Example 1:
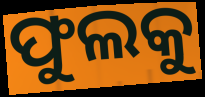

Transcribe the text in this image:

ଫୁଲକୁ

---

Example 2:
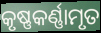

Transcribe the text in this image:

କୃଷ୍ଣକର୍ଣ୍ଣାମୃତ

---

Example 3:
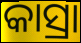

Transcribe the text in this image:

କାସ୍ରା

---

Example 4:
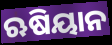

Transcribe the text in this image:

ଋଷିୟାନ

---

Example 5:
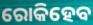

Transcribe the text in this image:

ରୋକିହେବ